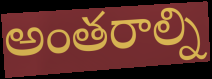
అంతరాల్ని